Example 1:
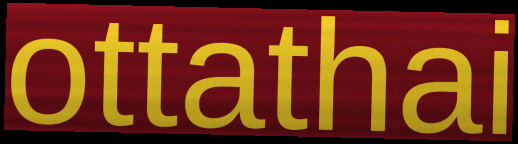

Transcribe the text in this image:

ottathai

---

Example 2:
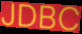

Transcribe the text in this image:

JDBC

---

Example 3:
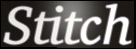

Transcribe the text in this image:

Stitch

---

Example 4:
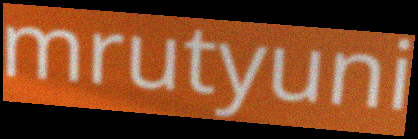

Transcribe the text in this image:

mrutyuni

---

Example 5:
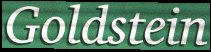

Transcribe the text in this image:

Goldstein